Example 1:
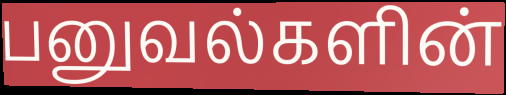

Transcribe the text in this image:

பனுவல்களின்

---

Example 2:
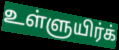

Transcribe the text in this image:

உள்ளுயிர்க்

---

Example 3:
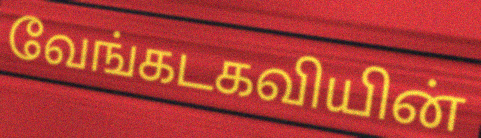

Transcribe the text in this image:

வேங்கடகவியின்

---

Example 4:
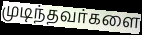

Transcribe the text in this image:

முடிந்தவர்களை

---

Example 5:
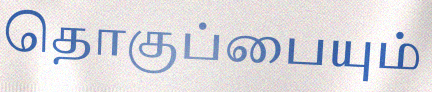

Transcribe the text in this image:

தொகுப்பையும்